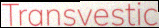
Transvestic